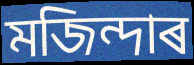
মজিন্দাৰ